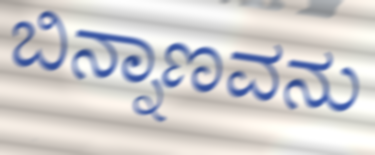
ಬಿನ್ನಾಣವನು